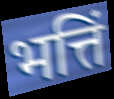
भत्तिं